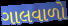
ગાલવાળો